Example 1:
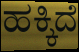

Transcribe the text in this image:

ಹಕ್ಕಿದೆ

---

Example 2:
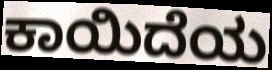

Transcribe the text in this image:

ಕಾಯಿದೆಯ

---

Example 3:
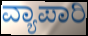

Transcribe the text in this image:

ವ್ಯಾಪಾರಿ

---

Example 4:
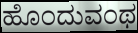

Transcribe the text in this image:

ಹೊಂದುವಂಥ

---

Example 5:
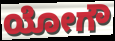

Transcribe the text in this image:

ಯೋಗೌ